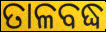
ତାଳବଦ୍ଧ